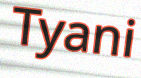
Tyani